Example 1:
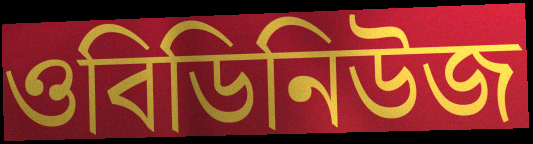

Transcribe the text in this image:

ওবিডিনিউজ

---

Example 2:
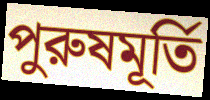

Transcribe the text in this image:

পুরুষমূর্তি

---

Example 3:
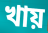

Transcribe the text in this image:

খায়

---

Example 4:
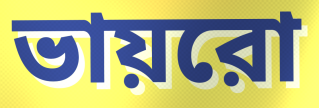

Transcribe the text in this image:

ভায়রো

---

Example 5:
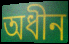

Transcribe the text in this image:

অধীন